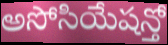
అసోసియేషన్తో